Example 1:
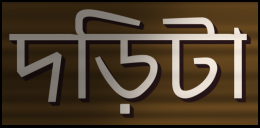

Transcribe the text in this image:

দড়িটা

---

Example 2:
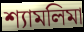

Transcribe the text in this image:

শ্যামলিমা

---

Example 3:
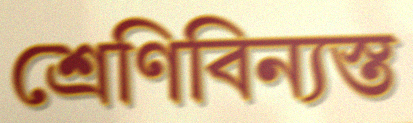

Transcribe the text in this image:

শ্রেণিবিন্যস্ত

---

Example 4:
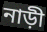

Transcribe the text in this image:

নাড়ী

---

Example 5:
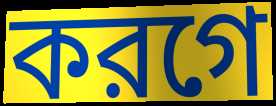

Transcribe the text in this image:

করগে